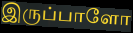
இருப்பாளோ